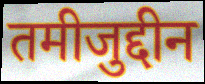
तमीजुद्दीन